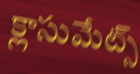
క్లాసుమేట్స్